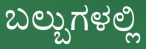
ಬಲ್ಬುಗಳಲ್ಲಿ